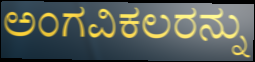
ಅಂಗವಿಕಲರನ್ನು